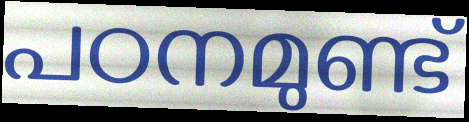
പഠനമുണ്ട്